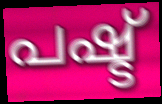
പഷ്ട്